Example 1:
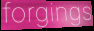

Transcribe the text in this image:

forgings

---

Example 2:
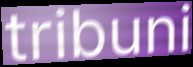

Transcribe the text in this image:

tribuni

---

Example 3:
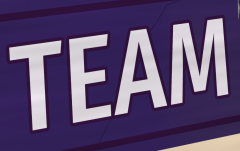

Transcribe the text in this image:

TEAM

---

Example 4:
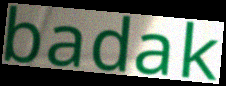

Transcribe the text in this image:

badak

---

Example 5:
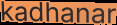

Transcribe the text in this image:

kadhanar